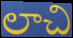
లాచి